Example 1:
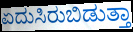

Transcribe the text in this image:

ಏದುಸಿರುಬಿಡುತ್ತಾ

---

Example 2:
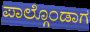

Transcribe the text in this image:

ಪಾಲ್ಗೊಂಡಾಗ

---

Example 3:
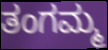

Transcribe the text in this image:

ತಂಗಮ್ಮ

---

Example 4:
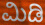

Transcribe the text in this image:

ಮಿಡಿ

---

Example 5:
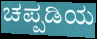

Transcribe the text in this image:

ಚಪ್ಪಡಿಯ